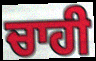
ਚਾਹੀ